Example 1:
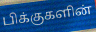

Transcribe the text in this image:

பிக்குகளின்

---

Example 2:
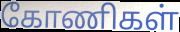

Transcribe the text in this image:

கோணிகள்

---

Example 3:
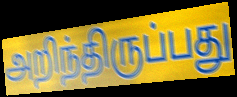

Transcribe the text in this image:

அறிந்திருப்பது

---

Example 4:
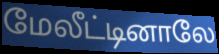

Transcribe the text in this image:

மேலீட்டினாலே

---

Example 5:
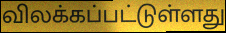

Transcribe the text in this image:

விலக்கப்பட்டுள்ளது